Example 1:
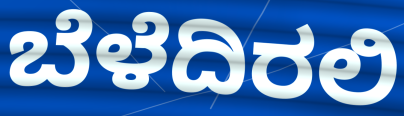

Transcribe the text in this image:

ಬೆಳೆದಿರಲಿ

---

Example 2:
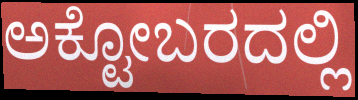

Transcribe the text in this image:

ಅಕ್ಟೋಬರದಲ್ಲಿ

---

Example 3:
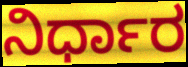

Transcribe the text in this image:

ನಿರ್ಧಾರ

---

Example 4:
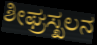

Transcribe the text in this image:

ಶೀಘ್ರಸ್ಖಲನ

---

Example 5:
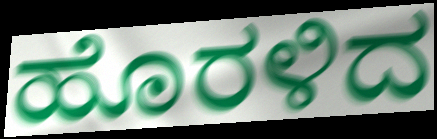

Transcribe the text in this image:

ಹೊರಳಿದ